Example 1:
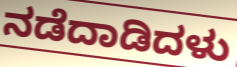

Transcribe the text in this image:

ನಡೆದಾಡಿದಳು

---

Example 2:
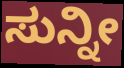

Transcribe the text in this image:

ಸುನ್ನೀ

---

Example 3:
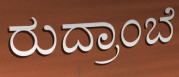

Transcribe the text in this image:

ರುದ್ರಾಂಬೆ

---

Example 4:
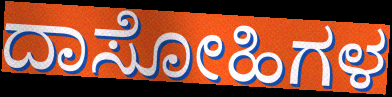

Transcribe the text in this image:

ದಾಸೋಹಿಗಳ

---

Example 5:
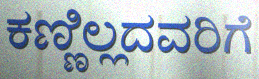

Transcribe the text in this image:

ಕಣ್ಣಿಲ್ಲದವರಿಗೆ